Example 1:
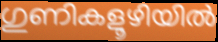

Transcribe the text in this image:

ഗുണികളൂഴിയിൽ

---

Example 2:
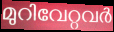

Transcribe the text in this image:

മുറിവേറ്റവർ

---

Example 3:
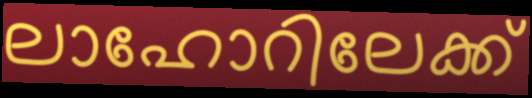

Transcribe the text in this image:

ലാഹോറിലേക്ക്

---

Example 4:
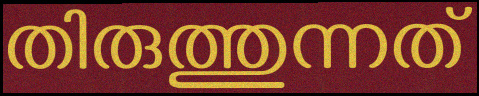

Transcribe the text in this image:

തിരുത്തുന്നത്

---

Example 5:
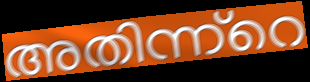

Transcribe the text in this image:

അതിന്ന്റെ